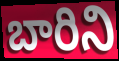
బారిని